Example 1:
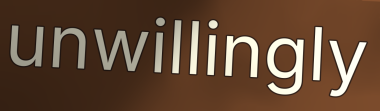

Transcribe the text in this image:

unwillingly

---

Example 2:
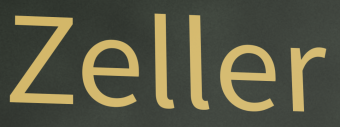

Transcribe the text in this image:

Zeller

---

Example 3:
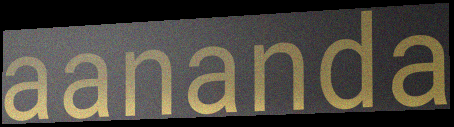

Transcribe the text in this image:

aananda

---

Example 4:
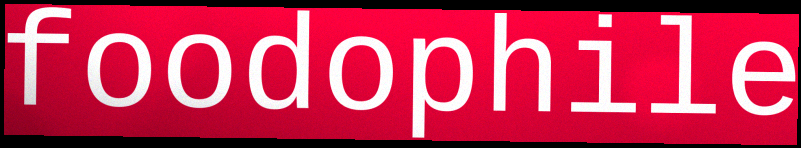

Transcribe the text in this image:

foodophile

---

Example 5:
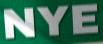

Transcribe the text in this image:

NYE